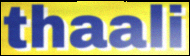
thaali